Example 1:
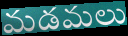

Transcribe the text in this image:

మడమలు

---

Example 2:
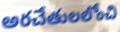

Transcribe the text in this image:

అరచేతులలోంచి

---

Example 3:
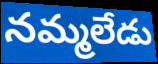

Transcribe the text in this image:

నమ్మలేడు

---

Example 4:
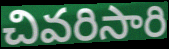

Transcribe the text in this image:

చివరిసారి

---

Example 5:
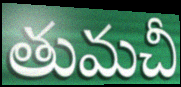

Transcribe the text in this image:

తుమచీ